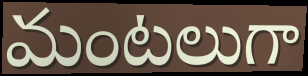
మంటలుగా